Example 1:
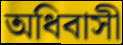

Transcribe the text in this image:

অধিবাসী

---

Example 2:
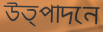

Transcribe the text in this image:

উত্পাদনে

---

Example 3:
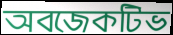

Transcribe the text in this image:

অবজেকটিভ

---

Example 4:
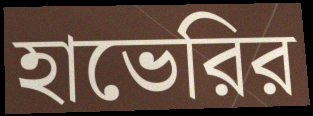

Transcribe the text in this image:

হাভেরির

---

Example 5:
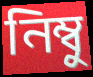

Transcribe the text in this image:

নিম্বু